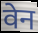
वेन